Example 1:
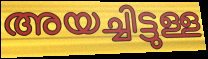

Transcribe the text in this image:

അയച്ചിട്ടുള്ള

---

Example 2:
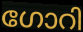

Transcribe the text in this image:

ഗോറി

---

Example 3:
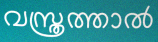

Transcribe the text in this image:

വസ്ത്രത്താൽ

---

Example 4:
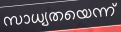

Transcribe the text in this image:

സാധ്യതയെന്ന്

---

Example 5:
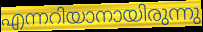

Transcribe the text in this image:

എന്നറിയാനായിരുന്നു